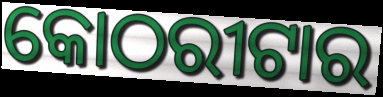
କୋଠରୀଟାର